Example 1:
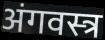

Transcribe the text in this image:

अंगवस्त्र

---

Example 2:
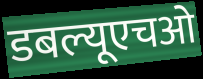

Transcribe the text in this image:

डबल्यूएचओ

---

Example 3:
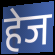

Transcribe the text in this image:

हेज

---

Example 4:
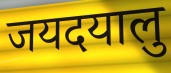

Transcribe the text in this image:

जयदयालु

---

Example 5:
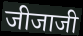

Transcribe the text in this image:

जीजाजी